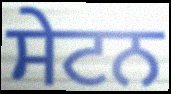
ਸੇਟਨ